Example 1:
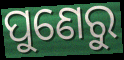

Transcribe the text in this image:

ପୁଣେରୁ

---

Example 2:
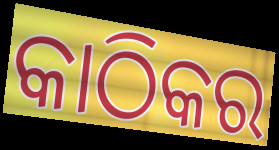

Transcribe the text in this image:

କାଠିକର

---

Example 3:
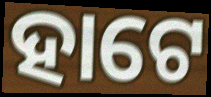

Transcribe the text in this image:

ହାଟେ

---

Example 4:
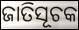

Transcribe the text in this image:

ଜାତିସୂଚକ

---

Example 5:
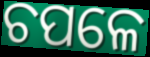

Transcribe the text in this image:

ଚପଳେ